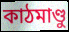
কাঠমাণ্ডু